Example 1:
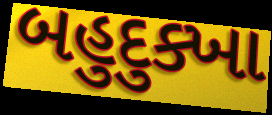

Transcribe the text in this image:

બહુદુક્ખા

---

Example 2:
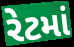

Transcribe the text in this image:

રેટમાં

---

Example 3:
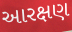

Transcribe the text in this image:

આરક્ષણ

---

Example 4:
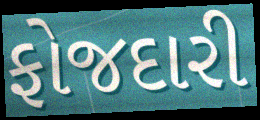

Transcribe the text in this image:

ફોજદારી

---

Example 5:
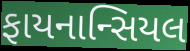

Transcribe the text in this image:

ફાયનાન્સિયલ